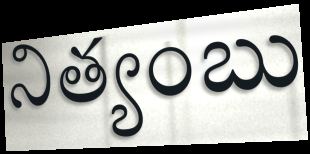
నిత్యంబు